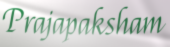
Prajapaksham